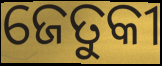
ଜେତୁକୀ